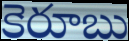
కెరూబు